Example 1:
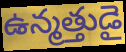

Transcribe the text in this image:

ఉన్మత్తుడై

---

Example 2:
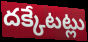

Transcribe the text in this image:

దక్కేటట్లు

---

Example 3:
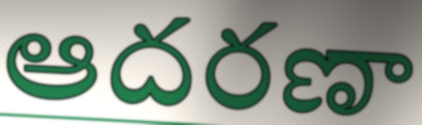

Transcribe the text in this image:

ఆదరణా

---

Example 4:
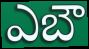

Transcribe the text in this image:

ఎబౌ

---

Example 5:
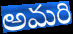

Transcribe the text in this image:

అమరి